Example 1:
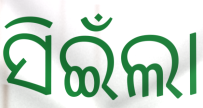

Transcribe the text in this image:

ସିଇଁଲା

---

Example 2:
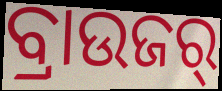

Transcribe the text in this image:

ବ୍ରାଉଜର୍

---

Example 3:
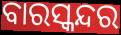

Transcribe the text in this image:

ବାରସ୍କନ୍ଦର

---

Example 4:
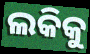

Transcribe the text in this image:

ଲକିକୁ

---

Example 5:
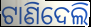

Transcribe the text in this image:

ଟାଣିଦେଲି